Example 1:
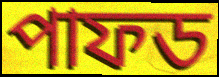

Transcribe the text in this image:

পাফড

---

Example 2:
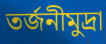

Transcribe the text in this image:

তর্জনীমুদ্রা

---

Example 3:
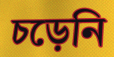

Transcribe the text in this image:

চড়েনি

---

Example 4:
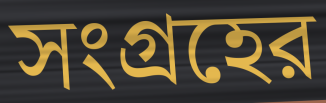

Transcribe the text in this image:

সংগ্রহের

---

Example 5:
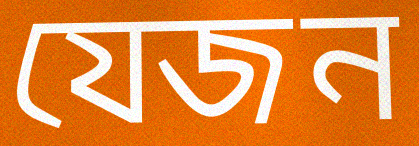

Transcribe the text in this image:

যেজন